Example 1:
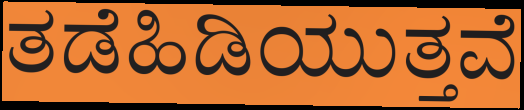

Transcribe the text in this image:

ತಡೆಹಿಡಿಯುತ್ತವೆ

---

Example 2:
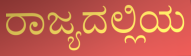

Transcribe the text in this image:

ರಾಜ್ಯದಲ್ಲಿಯ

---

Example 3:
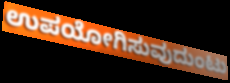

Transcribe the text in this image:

ಉಪಯೋಗಿಸುವುದುಂಟು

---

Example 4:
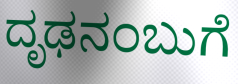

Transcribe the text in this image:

ದೃಢನಂಬುಗೆ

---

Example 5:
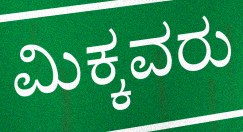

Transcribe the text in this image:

ಮಿಕ್ಕವರು